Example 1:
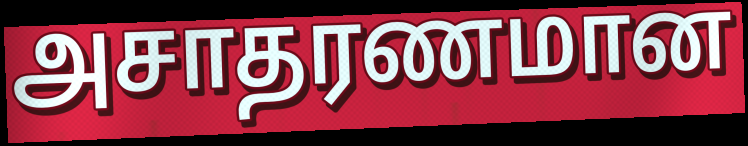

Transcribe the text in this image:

அசாதரணமான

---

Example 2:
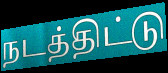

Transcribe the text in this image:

நடத்திட்டு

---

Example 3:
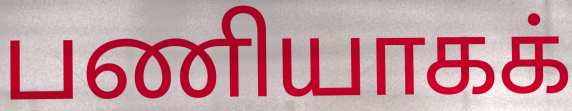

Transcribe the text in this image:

பணியாகக்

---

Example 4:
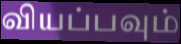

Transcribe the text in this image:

வியப்பவும்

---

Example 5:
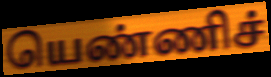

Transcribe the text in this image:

யெண்ணிச்